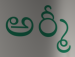
అర్మీ